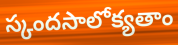
స్కందసాలోక్యతాం